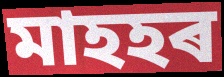
মাহহৰ